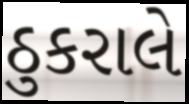
ઠુકરાલે